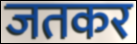
जतकर